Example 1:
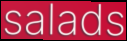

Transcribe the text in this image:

salads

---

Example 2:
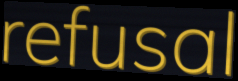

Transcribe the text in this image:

refusal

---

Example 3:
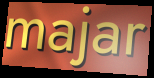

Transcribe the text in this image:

majar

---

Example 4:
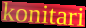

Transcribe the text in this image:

konitari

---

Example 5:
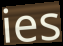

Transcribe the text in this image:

ies